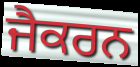
ਜੈਕਰਨ